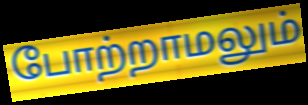
போற்றாமலும்